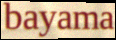
bayama